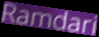
Ramdari